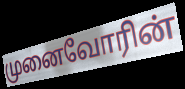
முனைவோரின்